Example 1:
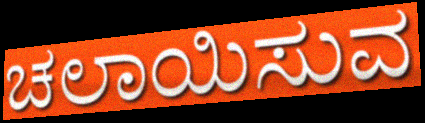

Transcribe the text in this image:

ಚಲಾಯಿಸುವ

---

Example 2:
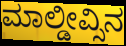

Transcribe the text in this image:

ಮಾಲ್ಡೀವ್ಸಿನ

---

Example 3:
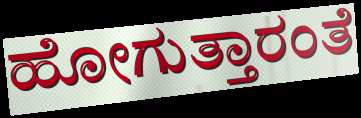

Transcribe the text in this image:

ಹೋಗುತ್ತಾರಂತೆ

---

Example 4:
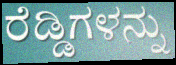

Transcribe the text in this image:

ರೆಡ್ಡಿಗಳನ್ನು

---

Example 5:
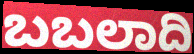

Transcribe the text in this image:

ಬಬಲಾದಿ